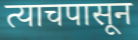
त्याचपासून